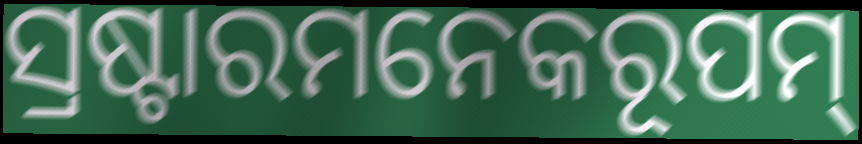
ସ୍ରଷ୍ଟାରମନେକରୂପମ୍